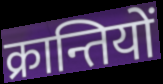
क्रान्तियों